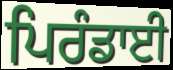
ਪਿਰੰਡਾਈ